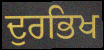
ਦੁਰਭਿਖ